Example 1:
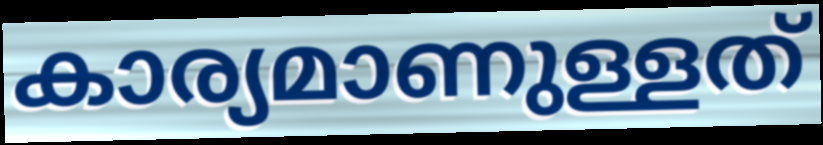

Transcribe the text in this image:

കാര്യമാണുള്ളത്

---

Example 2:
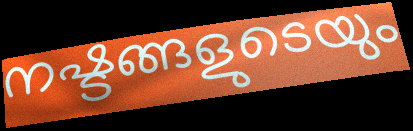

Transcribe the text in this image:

നഷ്ടങ്ങളുടെയും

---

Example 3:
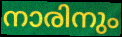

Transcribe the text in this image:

നാരിനും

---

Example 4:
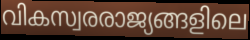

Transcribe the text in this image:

വികസ്വരരാജ്യങ്ങളിലെ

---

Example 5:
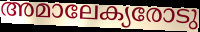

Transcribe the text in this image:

അമാലേക്യരോടു